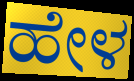
ಹೇಳ